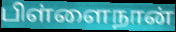
பிள்ளைநான்